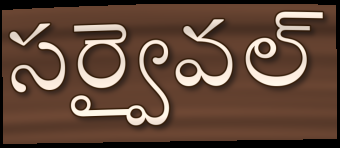
సర్వైవల్